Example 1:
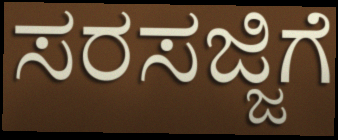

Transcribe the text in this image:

ಸರಸಜ್ಜಿಗೆ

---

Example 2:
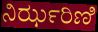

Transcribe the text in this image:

ನಿರ್ಝರಿಣಿ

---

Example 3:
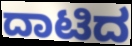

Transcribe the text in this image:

ದಾಟಿದ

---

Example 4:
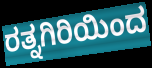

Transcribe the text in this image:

ರತ್ನಗಿರಿಯಿಂದ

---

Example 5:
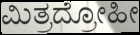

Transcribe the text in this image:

ಮಿತ್ರದ್ರೋಹೀ